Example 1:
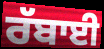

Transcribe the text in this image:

ਰੱਬਾਈ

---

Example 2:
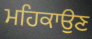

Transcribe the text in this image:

ਮਹਿਕਾਉਣ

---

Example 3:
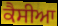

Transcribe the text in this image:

ਕੈਸੀਆ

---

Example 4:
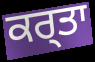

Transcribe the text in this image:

ਕਰ੍ਤਾ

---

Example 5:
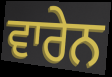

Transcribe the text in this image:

ਵਾਰੇਨ